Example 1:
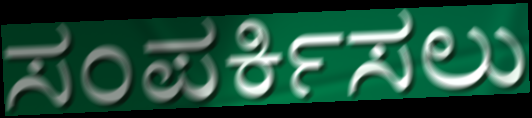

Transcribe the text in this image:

ಸಂಪರ್ಕಿಸಲು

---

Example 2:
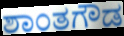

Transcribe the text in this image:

ಶಾಂತಗೌಡ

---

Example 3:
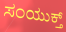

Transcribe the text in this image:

ಸಂಯುಕ್ತ್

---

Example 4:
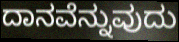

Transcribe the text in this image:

ದಾನವೆನ್ನುವುದು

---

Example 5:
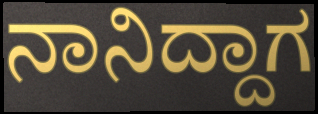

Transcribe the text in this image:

ನಾನಿದ್ದಾಗ